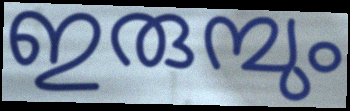
ഇരുമ്പും